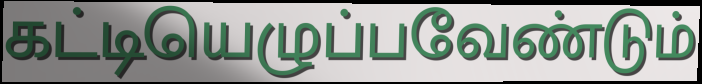
கட்டியெழுப்பவேண்டும்